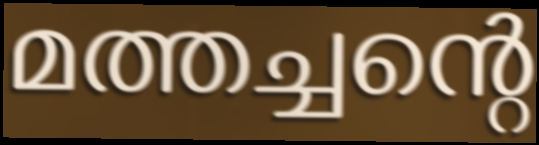
മത്തച്ചന്റെ